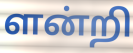
ளன்றி